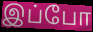
இப்போ